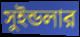
সুইন্ডলার